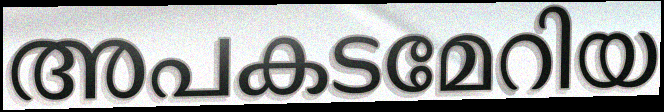
അപകടമേറിയ